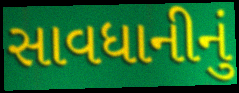
સાવધાનીનું